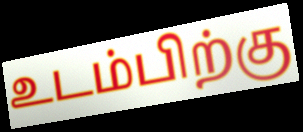
உடம்பிற்கு